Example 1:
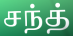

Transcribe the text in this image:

சந்த்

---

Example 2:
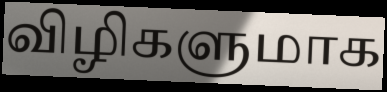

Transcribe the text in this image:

விழிகளுமாக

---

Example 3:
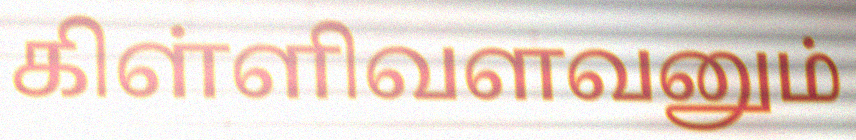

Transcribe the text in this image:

கிள்ளிவளவனும்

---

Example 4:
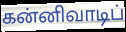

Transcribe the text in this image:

கன்னிவாடிப்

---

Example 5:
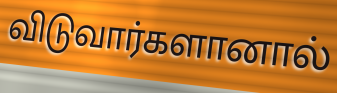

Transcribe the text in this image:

விடுவார்களானால்